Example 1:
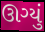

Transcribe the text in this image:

ઊગ્યું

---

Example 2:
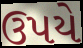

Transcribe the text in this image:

ઉપયે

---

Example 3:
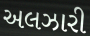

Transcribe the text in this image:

અલઝારી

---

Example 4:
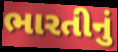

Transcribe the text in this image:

ભારતીનું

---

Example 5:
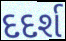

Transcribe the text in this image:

દદર્શ